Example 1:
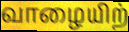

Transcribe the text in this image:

வாழையிற்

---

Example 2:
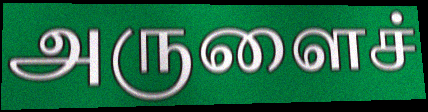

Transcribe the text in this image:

அருளைச்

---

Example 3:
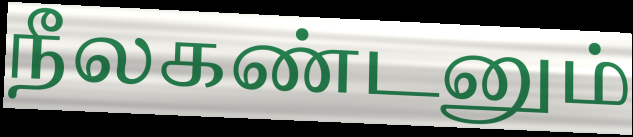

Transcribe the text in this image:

நீலகண்டனும்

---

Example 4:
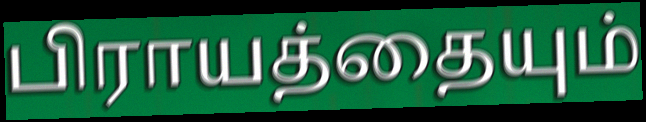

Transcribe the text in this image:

பிராயத்தையும்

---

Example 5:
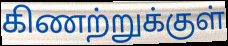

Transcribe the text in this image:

கிணற்றுக்குள்